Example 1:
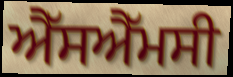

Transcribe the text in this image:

ਐੱਸਐੱਮਸੀ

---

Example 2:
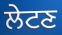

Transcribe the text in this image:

ਲੇਟਣ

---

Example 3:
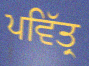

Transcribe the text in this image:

ਪਵਿੱਤ੍ਰ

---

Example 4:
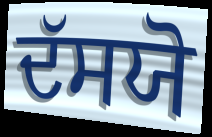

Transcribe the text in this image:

ਦੱਸਯੋ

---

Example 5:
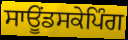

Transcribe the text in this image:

ਸਾਊਂਡਸਕੇਪਿੰਗ